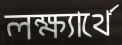
লক্ষ্যার্থে